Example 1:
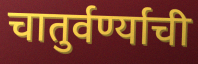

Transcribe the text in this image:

चातुर्वर्ण्याची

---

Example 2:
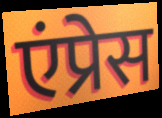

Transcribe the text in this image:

एंप्रेस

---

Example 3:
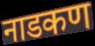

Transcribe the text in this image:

नाडकण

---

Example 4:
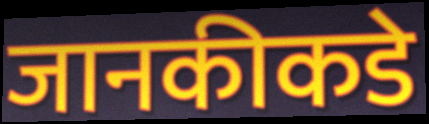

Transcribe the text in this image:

जानकीकडे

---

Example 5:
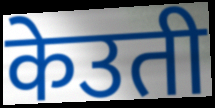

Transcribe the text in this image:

केउती